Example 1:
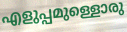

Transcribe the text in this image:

എളുപ്പമുള്ളൊരു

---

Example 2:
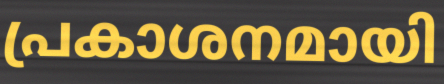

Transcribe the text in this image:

പ്രകാശനമായി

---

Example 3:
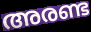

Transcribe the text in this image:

അരണ്ട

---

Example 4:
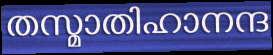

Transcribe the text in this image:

തസ്മാതിഹാനന്ദ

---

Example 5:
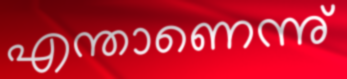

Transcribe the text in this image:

എന്താണെന്നു്